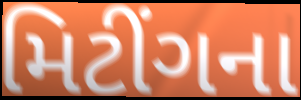
મિટીંગના